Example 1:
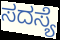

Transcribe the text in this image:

ಸದಸ್ಯೆ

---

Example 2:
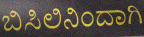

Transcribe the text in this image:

ಬಿಸಿಲಿನಿಂದಾಗಿ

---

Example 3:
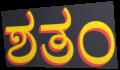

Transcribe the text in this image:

ಶತಂ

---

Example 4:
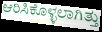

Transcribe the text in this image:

ಆರಿಸಿಕೊಳ್ಳಲಾಗಿತ್ತು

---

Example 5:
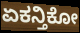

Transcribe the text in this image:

ಏಕನ್ತಿಕೋ